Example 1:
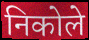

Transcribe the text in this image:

निकोले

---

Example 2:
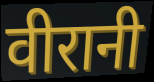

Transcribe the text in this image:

वीरानी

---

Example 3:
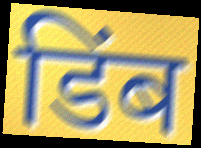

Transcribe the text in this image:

डिंब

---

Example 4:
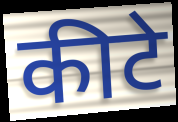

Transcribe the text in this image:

कीटे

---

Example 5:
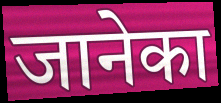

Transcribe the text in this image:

जानेका